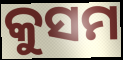
କୁସମ